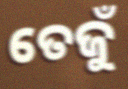
ତେଜୁଁ